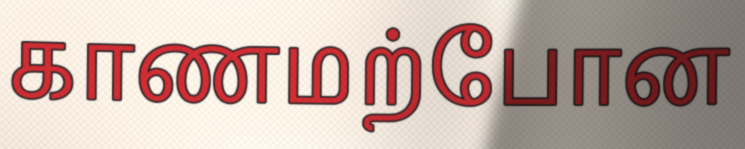
காணமற்போன